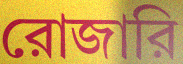
রোজারি